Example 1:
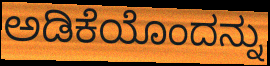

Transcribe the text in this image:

ಅಡಿಕೆಯೊಂದನ್ನು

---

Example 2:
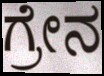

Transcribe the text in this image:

ಗ್ರೇನ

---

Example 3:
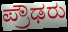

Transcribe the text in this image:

ಪ್ರೌಢರು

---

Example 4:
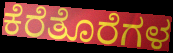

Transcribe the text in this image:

ಕೆರೆತೊರೆಗಳ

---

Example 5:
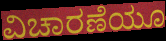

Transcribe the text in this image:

ವಿಚಾರಣೆಯೂ